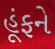
હૂંફને